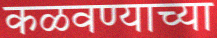
कळवण्याच्या